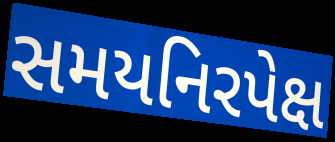
સમયનિરપેક્ષ